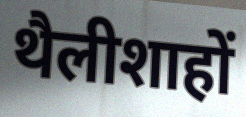
थैलीशाहों